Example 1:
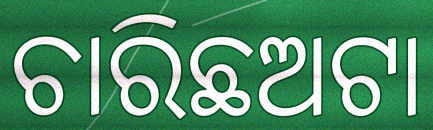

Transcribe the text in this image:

ଚାରିଛଅଟା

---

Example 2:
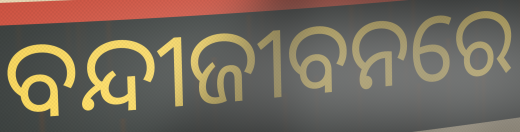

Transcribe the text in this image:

ବନ୍ଦୀଜୀବନରେ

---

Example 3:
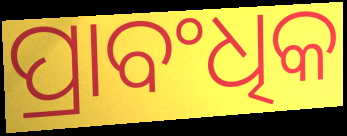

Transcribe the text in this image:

ପ୍ରାବଂଧିକ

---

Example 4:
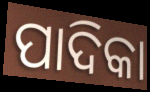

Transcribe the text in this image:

ପାଦିକା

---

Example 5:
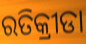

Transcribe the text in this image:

ରତିକ୍ରୀଡା